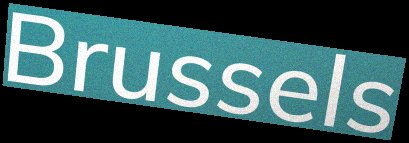
Brussels